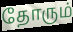
தோரும்